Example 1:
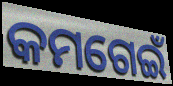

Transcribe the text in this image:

କମଗେଇଁ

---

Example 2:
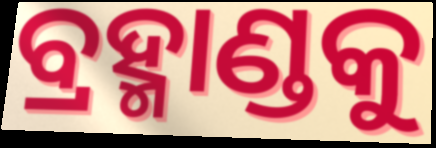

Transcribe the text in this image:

ବ୍ରହ୍ମାଣ୍ଡକୁ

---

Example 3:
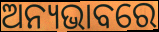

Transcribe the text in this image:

ଅନ୍ୟଭାବରେ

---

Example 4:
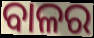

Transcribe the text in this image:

ବାଳର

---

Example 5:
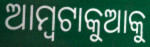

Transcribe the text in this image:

ଆମ୍ବଟାକୁଆକୁ